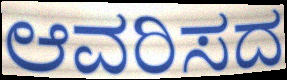
ಆವರಿಸದ